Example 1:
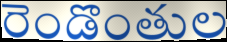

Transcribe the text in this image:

రెండొంతుల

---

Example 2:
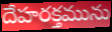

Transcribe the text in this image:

దేహరక్తమును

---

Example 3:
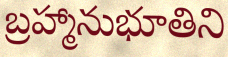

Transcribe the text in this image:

బ్రహ్మానుభూతిని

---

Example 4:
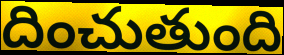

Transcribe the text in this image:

దించుతుంది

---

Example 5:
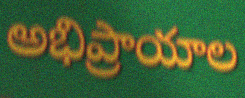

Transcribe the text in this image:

అభిప్రాయాల